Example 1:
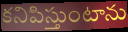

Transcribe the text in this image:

కనిపిస్తుంటాను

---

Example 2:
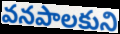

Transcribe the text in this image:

వనపాలకుని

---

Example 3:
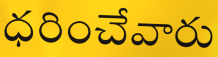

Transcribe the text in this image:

ధరించేవారు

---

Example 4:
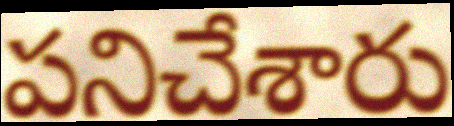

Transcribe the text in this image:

పనిచేశారు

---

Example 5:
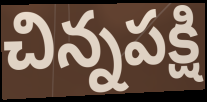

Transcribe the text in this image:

చిన్నపక్షి